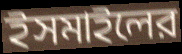
ইসমাইলের